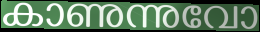
കാണുന്നുവോ